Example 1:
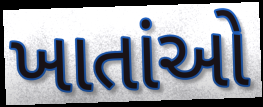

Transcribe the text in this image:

ખાતાંઓ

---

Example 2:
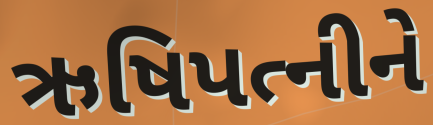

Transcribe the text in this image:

ઋષિપત્નીને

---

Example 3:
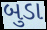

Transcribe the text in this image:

બુડા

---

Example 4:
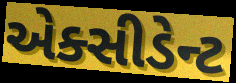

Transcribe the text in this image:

એક્સીડેન્ટ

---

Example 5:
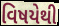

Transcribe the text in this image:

વિષયેથી